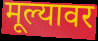
मूल्यावर